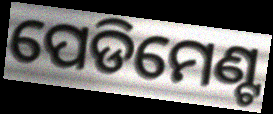
ପେଡିମେଣ୍ଟ